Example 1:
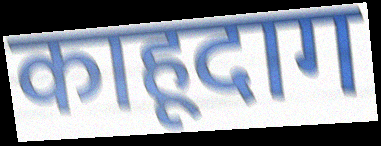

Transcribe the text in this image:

काहूदाग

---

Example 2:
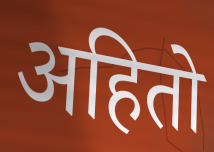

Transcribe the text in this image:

अहितो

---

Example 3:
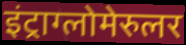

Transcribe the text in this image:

इंट्राग्लोमेरुलर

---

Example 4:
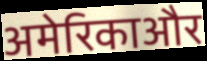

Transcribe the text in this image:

अमेरिकाऔर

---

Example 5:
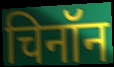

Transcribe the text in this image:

चिनॉन